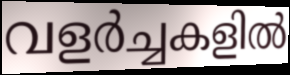
വളർച്ചകളിൽ